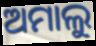
ଅମାଲୁ